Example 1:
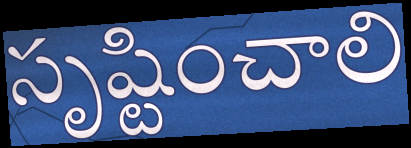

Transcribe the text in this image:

సృష్టించాలి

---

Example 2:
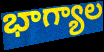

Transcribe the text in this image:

భాగ్యాల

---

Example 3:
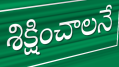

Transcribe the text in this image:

శిక్షించాలనే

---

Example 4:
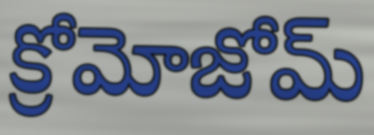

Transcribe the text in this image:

క్రోమోజోమ్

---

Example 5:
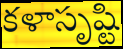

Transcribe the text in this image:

కళాసృష్టి